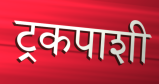
ट्रकपाशी